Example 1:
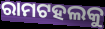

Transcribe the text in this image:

ରାମଟହଲକୁ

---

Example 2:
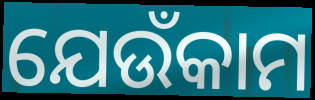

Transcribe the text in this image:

ଯେଉଁକାମ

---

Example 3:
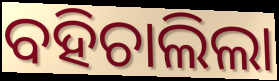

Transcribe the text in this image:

ବହିଚାଲିଲା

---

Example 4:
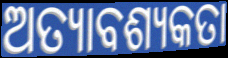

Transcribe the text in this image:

ଅତ୍ୟାବଶ୍ୟକତା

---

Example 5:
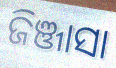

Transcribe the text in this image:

ଜିଞ୍ଜାସା